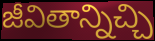
జీవితాన్నిచ్చి